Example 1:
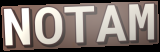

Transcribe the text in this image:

NOTAM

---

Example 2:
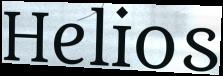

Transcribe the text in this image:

Helios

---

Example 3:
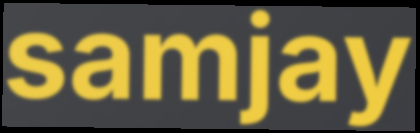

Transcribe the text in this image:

samjay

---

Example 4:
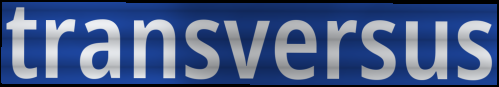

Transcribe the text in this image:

transversus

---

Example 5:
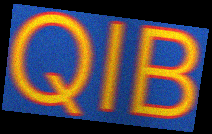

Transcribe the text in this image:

QIB